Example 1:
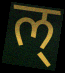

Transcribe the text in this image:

ल्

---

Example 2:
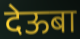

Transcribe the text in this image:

देऊबा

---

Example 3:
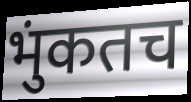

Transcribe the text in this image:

भुंकतच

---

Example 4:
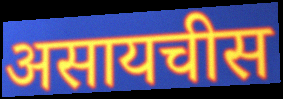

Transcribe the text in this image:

असायचीस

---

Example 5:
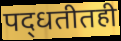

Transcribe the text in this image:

पद्धतीतही